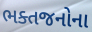
ભક્તજનોના